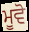
ਮੂਵੋ